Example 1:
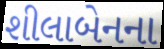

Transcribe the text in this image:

શીલાબેનના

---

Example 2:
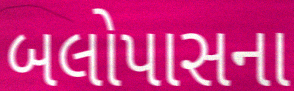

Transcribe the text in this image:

બલોપાસના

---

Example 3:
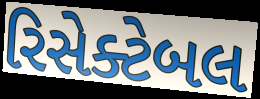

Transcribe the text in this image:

રિસેક્ટેબલ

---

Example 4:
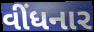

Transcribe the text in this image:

વીંધનાર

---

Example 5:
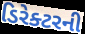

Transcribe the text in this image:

ડિરેક્ટરની